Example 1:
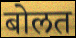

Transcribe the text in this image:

बोलत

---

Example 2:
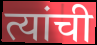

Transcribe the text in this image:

त्यांची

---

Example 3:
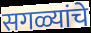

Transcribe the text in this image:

सगळ्यांचे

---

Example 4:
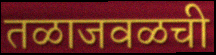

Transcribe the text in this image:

तळाजवळची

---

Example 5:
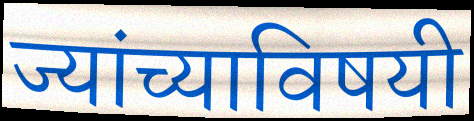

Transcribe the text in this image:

ज्यांच्याविषयी